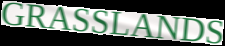
GRASSLANDS